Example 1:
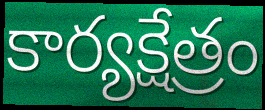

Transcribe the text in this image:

కార్యక్షేత్రం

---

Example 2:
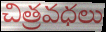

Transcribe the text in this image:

చిత్రవధలు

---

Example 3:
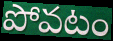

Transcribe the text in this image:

పోవటం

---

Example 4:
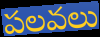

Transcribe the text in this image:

పలవలు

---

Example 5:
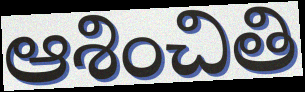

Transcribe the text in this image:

ఆశించితి